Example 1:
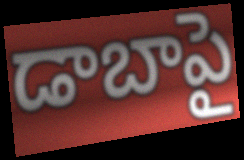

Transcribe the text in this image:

డాబాపై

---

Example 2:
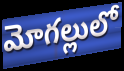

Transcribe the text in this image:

మోగల్లులో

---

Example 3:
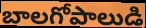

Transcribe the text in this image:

బాలగోపాలుడి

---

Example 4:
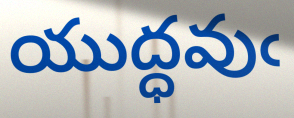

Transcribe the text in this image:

యుద్ధవుఁ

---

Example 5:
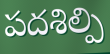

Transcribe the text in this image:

పదశిల్పి